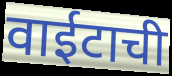
वाईटाची